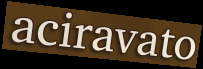
aciravato